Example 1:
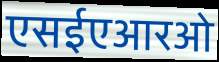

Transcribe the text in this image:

एसईएआरओ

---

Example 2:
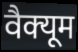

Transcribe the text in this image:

वैक्‍यूम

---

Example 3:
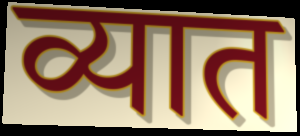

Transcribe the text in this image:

व्यात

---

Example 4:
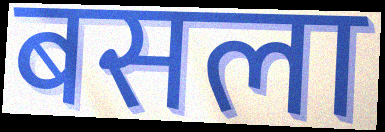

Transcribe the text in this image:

बसला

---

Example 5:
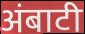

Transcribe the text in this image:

अंबाटी